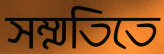
সম্মতিতে